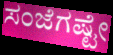
ಸಂಜೆಗಷ್ಟೇ